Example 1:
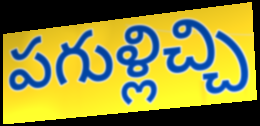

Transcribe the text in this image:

పగుళ్లిచ్చి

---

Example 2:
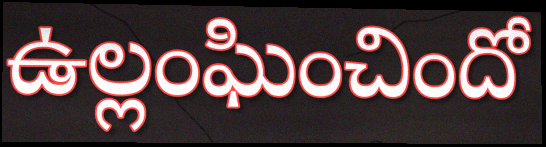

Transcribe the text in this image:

ఉల్లంఘించిందో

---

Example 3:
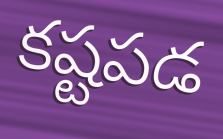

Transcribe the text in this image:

కష్టపడ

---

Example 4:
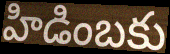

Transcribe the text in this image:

హిడింబకు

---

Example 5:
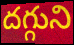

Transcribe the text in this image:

దగ్గుని